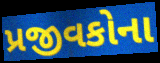
પ્રજીવકોના